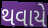
થવાયે